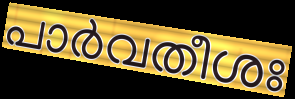
പാർവതീശഃ